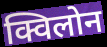
क्विलोन